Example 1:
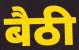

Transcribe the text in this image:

बैठी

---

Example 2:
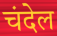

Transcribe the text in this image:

चंदेल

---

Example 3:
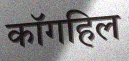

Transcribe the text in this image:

कॉगहिल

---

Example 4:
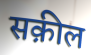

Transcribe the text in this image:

सक़ील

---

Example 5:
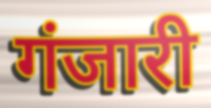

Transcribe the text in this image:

गंजारी